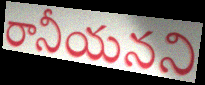
రానీయనని